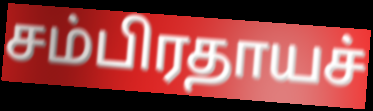
சம்பிரதாயச்